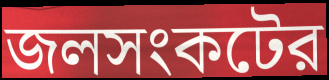
জলসংকটের